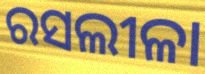
ରସଲୀଳା